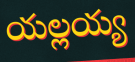
యల్లయ్య